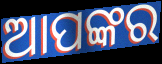
ଆପଙ୍କର